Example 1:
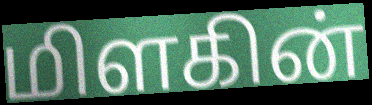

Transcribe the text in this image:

மிளகின்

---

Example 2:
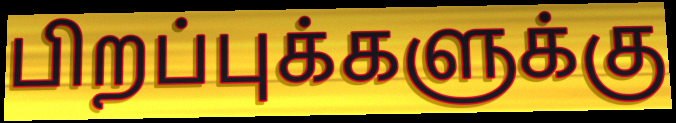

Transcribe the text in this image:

பிறப்புக்களுக்கு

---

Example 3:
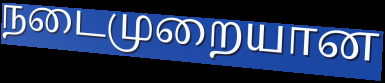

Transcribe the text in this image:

நடைமுறையான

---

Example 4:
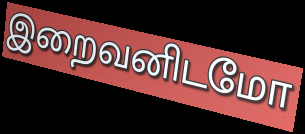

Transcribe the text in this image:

இறைவனிடமோ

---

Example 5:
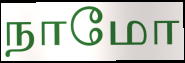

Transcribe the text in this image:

நாமோ